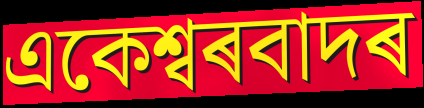
একেশ্বৰবাদৰ